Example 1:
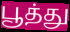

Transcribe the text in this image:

பூத்து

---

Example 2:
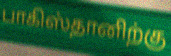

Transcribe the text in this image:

பாகிஸ்தானிற்கு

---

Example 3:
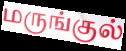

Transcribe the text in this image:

மருங்குல்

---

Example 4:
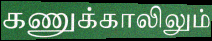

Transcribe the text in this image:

கணுக்காலிலும்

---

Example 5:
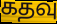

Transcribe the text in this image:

கதவு